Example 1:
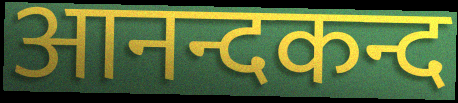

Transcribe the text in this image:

आनन्दकन्द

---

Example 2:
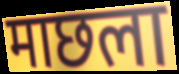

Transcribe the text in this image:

माछला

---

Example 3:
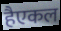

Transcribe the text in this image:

हैएकल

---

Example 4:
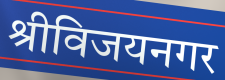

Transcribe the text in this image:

श्रीविजयनगर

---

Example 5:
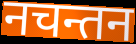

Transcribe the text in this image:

नचन्तन